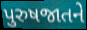
પુરુષજાતને